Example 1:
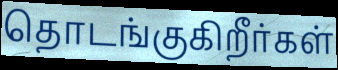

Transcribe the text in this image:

தொடங்குகிறீர்கள்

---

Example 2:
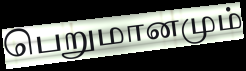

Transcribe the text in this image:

பெறுமானமும்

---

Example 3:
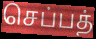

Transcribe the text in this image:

செப்பத்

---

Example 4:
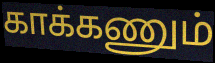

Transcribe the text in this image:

காக்கணும்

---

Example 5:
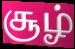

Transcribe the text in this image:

சூழ்